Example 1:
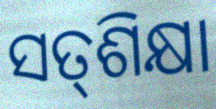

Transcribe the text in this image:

ସତ୍‌ଶିକ୍ଷା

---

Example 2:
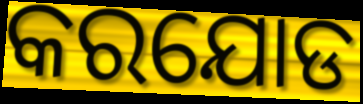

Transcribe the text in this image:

କରଯୋଡ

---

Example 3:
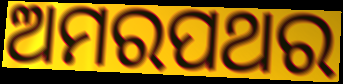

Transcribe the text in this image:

ଅମରପଥର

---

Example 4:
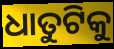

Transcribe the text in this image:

ଧାତୁଟିକୁ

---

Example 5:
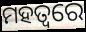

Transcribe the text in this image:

ମହତ୍ୱରେ